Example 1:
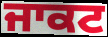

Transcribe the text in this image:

ਜਾਕਟ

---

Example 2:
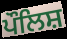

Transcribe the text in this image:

ਪੌਲਿਸ਼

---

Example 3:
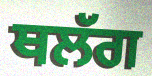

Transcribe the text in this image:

ਥਲੱਗ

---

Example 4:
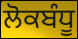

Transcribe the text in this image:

ਲੋਕਬੰਧੂ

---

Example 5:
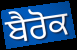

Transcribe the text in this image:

ਬੈਰੋਕ